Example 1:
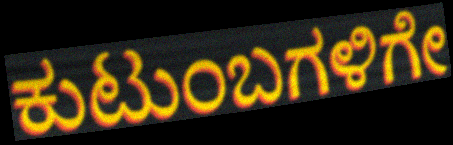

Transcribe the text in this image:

ಕುಟುಂಬಗಳಿಗೇ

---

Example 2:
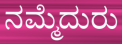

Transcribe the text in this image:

ನಮ್ಮೆದುರು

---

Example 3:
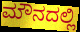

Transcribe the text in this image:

ಮೌನದಲ್ಲಿ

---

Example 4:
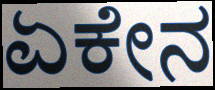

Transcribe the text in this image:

ಏಕೇನ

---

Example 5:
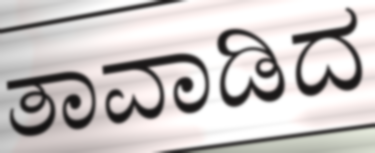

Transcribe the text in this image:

ತಾವಾಡಿದ